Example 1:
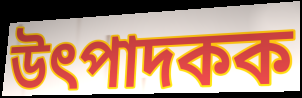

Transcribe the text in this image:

উৎপাদকক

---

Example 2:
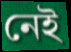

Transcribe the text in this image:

নেই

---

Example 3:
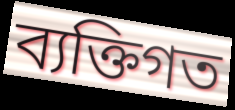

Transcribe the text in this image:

ব্যক্তিগত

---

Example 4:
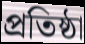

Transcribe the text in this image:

প্ৰতিষ্ঠা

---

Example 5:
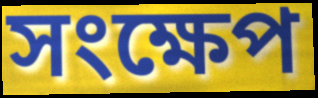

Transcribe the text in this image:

সংক্ষেপ